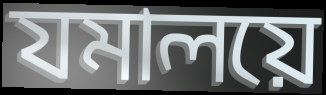
যমালয়ে